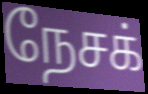
நேசக்